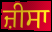
ਜ਼ੀਸਾ